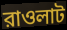
রাওলাট